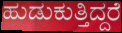
ಹುಡುಕುತ್ತಿದ್ದರೆ